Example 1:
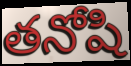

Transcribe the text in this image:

తనోషి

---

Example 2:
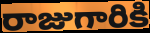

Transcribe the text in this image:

రాజుగారికి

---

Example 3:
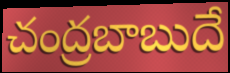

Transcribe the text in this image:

చంద్రబాబుదే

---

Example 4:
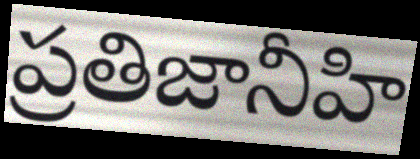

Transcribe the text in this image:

ప్రతిజానీహి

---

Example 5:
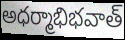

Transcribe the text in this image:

అధర్మాభిభవాత్